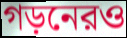
গড়নেরও